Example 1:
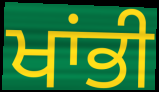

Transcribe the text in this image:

ਖਾਂਭੀ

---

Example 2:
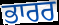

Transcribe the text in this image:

ਭਾਰਰ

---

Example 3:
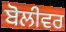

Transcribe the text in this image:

ਬੋਲੀਵਰ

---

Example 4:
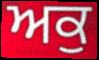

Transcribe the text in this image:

ਅਕੁ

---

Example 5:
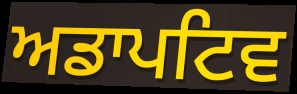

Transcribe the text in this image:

ਅਡਾਪਟਿਵ